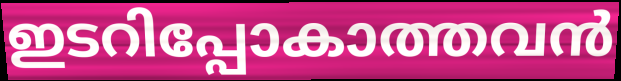
ഇടറിപ്പോകാത്തവൻ